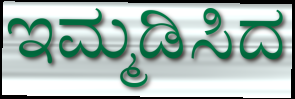
ಇಮ್ಮಡಿಸಿದ